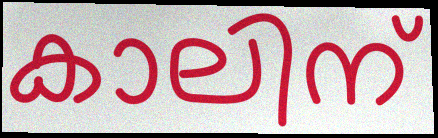
കാലിന്